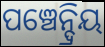
ପଞ୍ଚେନ୍ଦ୍ରିୟ